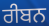
ਰੀਬਨ